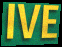
IVE